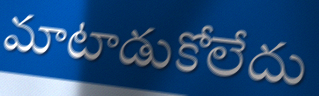
మాటాడుకోలేదు